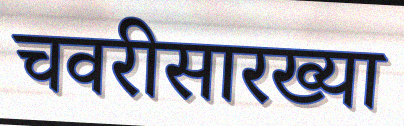
चवरीसारख्या